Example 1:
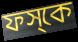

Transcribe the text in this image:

ফস্‌কে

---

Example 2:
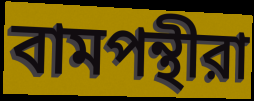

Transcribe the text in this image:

বামপন্থীরা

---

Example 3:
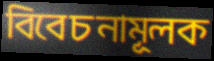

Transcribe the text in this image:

বিবেচনামূলক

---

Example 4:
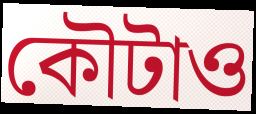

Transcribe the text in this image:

কৌটাও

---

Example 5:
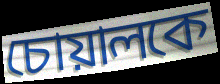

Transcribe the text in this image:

চোয়ালকে